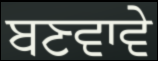
ਬਣਵਾਵੇ